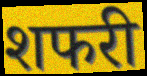
शफरी